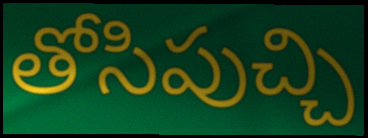
తోసిపుచ్చి